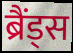
ब्रैंड्स